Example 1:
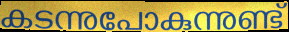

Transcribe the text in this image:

കടന്നുപോകുന്നുണ്ട്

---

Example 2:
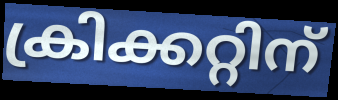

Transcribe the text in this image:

ക്രിക്കറ്റിന്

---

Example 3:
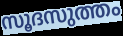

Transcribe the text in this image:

സൂദസുത്തം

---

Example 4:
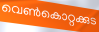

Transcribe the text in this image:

വെൺകൊറ്റക്കുട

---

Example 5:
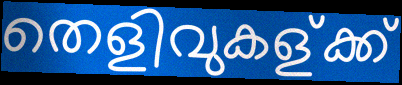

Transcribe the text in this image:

തെളിവുകള്ക്ക്